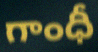
గాంధీ